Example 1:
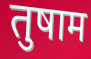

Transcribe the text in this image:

तुषाम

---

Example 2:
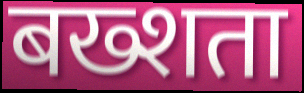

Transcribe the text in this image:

बख्शता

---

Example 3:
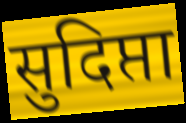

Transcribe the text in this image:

सुदिप्ता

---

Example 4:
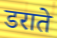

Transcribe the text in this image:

डराते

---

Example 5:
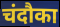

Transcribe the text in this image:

चंदौका